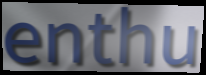
enthu